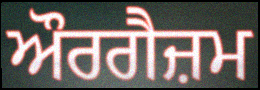
ਔਰਗੈਜ਼ਮ